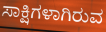
ಸಾಕ್ಷಿಗಳಾಗಿರುವ